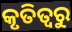
କୃତିତ୍ଵରୁ